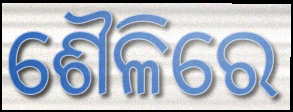
ଶୈଳିରେ